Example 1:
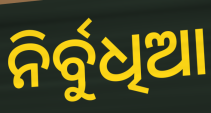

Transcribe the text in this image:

ନିର୍ବୁଧିଆ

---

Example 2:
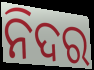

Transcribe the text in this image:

ନିଦର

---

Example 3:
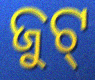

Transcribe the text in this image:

ଜୁଟ୍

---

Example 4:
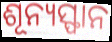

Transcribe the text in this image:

ଶୂନ୍ୟସ୍ଫାନ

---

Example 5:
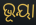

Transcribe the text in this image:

ଭୂୟା